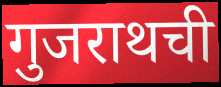
गुजराथची